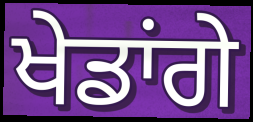
ਖੇਡਾਂਗੇ